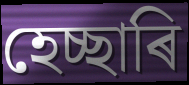
হেচ্ছাৰি